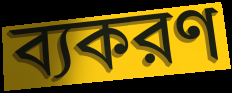
ব্যকরণ